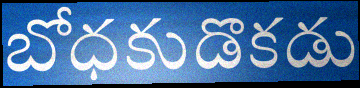
బోధకుడొకడు